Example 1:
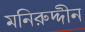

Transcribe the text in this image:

মনিরুদ্দীন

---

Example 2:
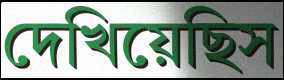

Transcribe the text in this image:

দেখিয়েছিস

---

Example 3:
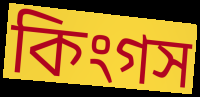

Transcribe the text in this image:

কিংগস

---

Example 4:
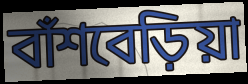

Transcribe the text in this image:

বাঁশবেড়িয়া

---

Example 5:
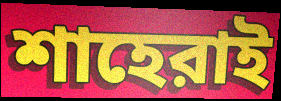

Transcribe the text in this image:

শাহেরাই